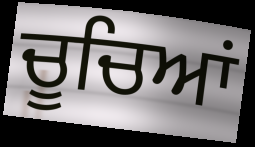
ਚੂਚਿਆਂ